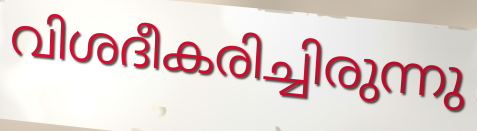
വിശദീകരിച്ചിരുന്നു